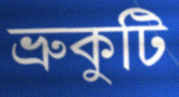
ভ্ৰুকুটি